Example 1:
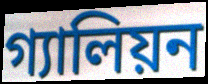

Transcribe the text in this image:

গ্যালিয়ন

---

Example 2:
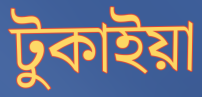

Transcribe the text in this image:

টুকাইয়া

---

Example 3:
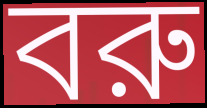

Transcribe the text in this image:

বরু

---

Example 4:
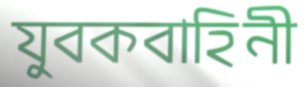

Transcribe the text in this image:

যুবকবাহিনী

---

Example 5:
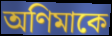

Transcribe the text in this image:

অণিমাকে